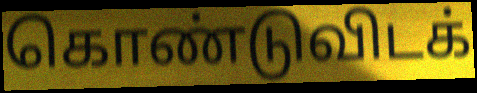
கொண்டுவிடக்